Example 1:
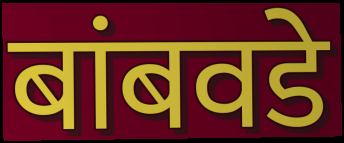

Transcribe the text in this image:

बांबवडे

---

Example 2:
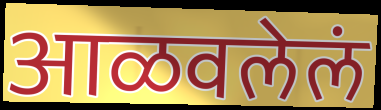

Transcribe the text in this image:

आळवलेलं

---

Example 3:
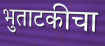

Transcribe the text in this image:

भुताटकीचा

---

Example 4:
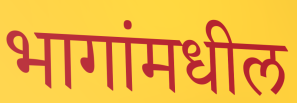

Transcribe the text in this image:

भागांमधील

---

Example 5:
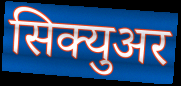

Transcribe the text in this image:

सिक्युअर